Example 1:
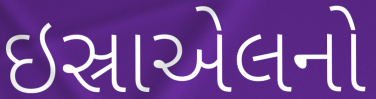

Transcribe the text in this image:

ઇસ્રાએલનો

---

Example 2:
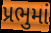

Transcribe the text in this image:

પ્રભુમાં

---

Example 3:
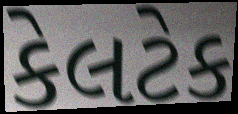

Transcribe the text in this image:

કેલટેક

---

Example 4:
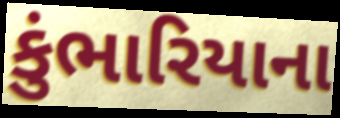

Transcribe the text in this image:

કુંભારિયાના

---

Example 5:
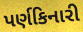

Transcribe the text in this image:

પર્ણકિનારી